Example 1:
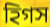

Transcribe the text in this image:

হিগস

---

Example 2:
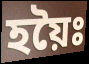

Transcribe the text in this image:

হয়ৈঃ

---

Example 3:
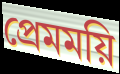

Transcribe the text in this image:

প্রেমময়ি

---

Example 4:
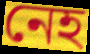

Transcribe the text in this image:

নেহ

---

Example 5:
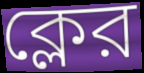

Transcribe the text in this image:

ক্লের